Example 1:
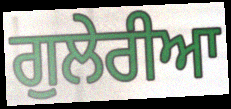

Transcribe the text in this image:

ਗੁਲੇਰੀਆ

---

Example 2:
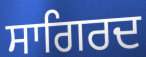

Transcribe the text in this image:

ਸਾਗਿਰਦ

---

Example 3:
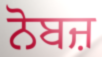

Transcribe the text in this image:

ਨੋਬਜ਼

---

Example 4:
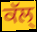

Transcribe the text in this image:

ਕੱਲ੍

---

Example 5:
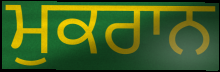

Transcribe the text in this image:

ਮੁਕਰਾਨ